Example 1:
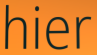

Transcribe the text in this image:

hier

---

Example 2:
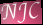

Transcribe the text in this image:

NJC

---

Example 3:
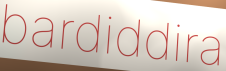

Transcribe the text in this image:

bardiddira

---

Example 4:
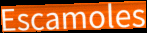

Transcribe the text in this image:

Escamoles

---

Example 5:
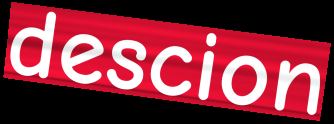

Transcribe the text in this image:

descion